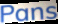
Pans